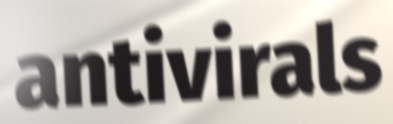
antivirals